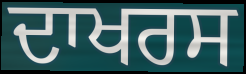
ਦਾਖਰਸ